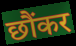
छौंकर